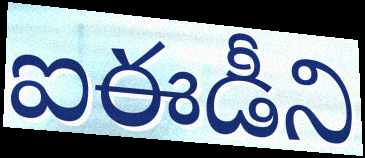
ఐఈడీని